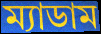
ম্যাডাম